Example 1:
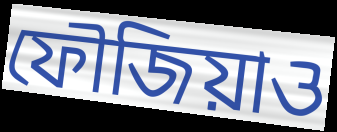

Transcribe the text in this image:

ফৌজিয়াও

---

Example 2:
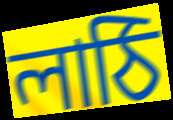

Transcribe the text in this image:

লাঠি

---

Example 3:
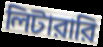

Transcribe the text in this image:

লিটারারি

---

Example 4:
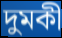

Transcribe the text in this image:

দুমকী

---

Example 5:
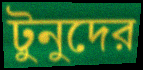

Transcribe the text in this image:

টুনুদের